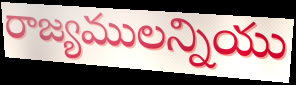
రాజ్యములన్నియు